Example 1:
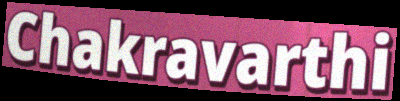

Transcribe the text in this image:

Chakravarthi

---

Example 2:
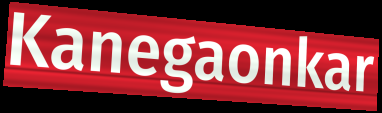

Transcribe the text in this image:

Kanegaonkar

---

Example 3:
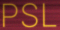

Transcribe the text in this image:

PSL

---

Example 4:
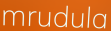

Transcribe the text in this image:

mrudula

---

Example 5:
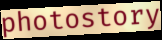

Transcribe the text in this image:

photostory